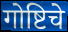
गोष्टिचे